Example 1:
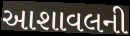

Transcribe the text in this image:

આશાવલની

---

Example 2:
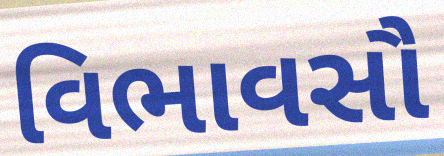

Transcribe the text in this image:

વિભાવસૌ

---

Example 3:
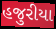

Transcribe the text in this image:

હજુરીયા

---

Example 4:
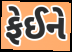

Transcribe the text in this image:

ફેઈને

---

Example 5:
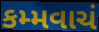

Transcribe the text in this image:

કમ્મવાચં